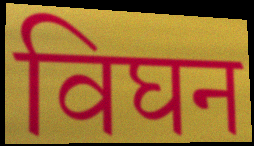
विघन